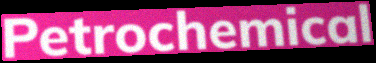
Petrochemical